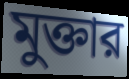
মুক্তার